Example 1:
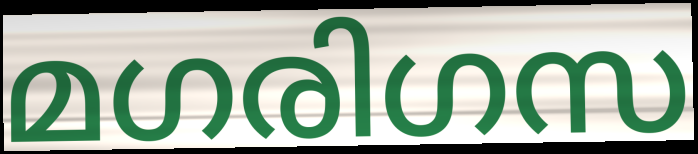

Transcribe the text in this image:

മഗരിഗസ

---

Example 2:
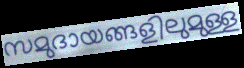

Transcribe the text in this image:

സമുദായങ്ങളിലുമുള്ള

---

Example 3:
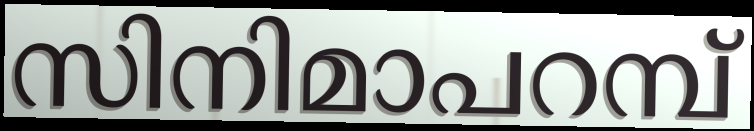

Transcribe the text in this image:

സിനിമാപറമ്പ്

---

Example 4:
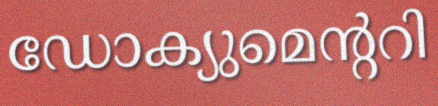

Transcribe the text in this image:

ഡോക്യുമെന്ററി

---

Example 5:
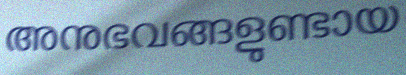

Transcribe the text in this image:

അനുഭവങ്ങളുണ്ടായ